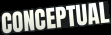
CONCEPTUAL